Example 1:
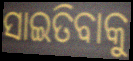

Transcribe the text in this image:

ସାଇତିବାକୁ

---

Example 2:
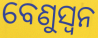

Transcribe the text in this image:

ବେଣୁସ୍ଵନ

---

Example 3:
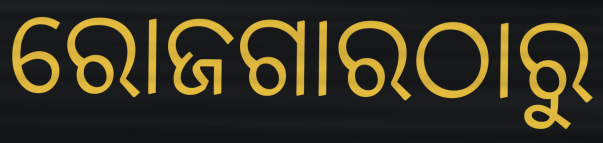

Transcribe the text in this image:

ରୋଜଗାରଠାରୁ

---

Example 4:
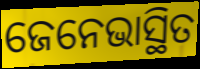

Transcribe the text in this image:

ଜେନେଭାସ୍ଥିତ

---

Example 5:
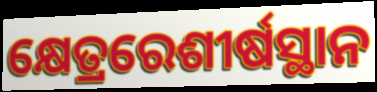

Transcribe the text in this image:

କ୍ଷେତ୍ରରେଶୀର୍ଷସ୍ଥାନ